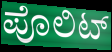
ಪೊಲಿಟ್